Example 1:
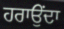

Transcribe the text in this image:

ਹਰਾਉਂਦਾ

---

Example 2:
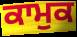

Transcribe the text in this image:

ਕਾਮੁਕ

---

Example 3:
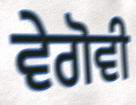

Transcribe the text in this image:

ਵੇਗੋਵੀ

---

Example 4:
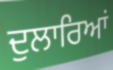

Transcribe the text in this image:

ਦੁਲਾਰਿਆਂ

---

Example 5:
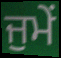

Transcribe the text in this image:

ਜੁਮੇਂ